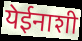
येईनाशी